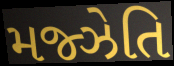
મજ્ઝેતિ